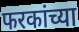
फरकांच्या